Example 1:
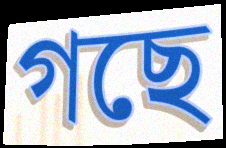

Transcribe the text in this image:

গছে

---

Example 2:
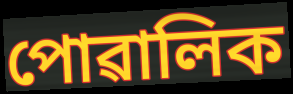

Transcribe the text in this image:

পোৱালিক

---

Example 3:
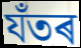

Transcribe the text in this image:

যঁতৰ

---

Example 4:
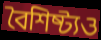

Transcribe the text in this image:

বৈশিষ্ট্যও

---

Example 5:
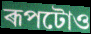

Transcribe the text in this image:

ৰূপটোও